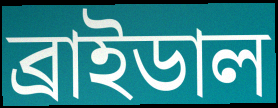
ব্রাইডাল